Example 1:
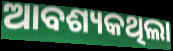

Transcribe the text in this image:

ଆବଶ୍ୟକଥିଲା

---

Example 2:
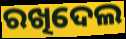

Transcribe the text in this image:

ରଖିଦେଲ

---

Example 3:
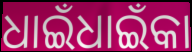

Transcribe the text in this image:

ଧାଇଁଧାଇଁକା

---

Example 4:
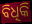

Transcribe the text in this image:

ବିଧିକି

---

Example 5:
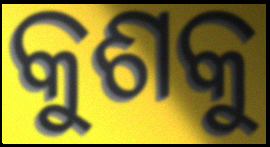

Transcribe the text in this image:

କୁଶକୁ